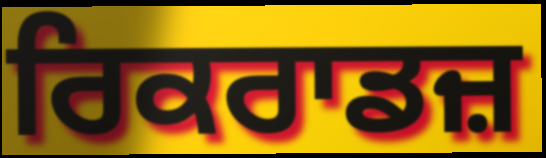
ਰਿਕਰਾਡਜ਼